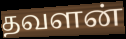
தவளன்